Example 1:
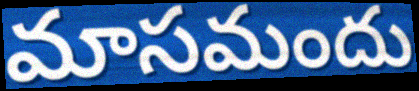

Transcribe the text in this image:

మాసమందు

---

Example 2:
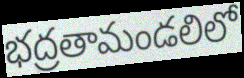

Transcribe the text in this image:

భద్రతామండలిలో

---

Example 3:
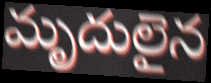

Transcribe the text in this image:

మృదులైన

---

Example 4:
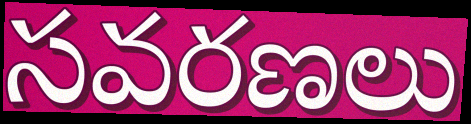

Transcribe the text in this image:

సవరణలు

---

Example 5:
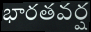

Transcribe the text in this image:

భారతవర్ష